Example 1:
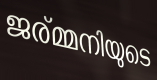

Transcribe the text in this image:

ജര്മ്മനിയുടെ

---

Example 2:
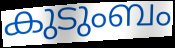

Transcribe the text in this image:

കുടുംബം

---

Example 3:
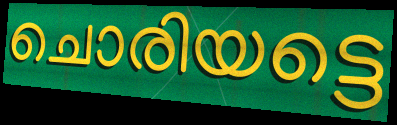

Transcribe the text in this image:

ചൊരിയട്ടെ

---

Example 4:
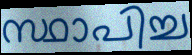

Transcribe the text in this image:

സ്ഥാപിച്ച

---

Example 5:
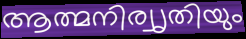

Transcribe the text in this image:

ആത്മനിര്വൃതിയും